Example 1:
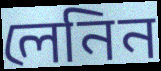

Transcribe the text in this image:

লেনিন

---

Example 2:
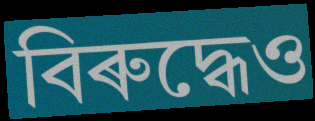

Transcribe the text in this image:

বিৰুদ্ধেও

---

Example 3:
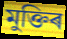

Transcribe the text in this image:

মুক্তিৰ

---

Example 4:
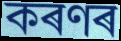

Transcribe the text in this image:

কৰণৰ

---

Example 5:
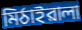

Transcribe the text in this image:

মিঠাইৱালা